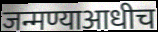
जन्मण्याआधीच